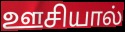
ஊசியால்